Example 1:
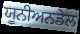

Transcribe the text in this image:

ਯੂਨੀਅਨਡੇਲ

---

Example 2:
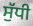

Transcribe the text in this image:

ਸੁੱਧੀ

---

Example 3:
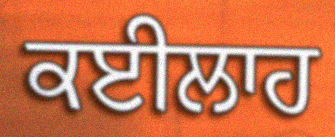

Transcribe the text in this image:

ਕਈਲਾਹ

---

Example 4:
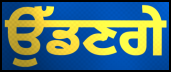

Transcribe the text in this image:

ਉੱਡਣਗੇ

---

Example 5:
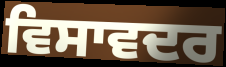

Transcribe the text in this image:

ਵਿਸਾਵਦਰ